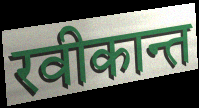
रवीकान्त